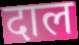
दाल